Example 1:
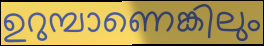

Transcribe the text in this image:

ഉറുമ്പാണെങ്കിലും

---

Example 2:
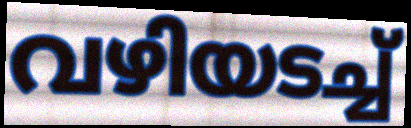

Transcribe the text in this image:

വഴിയടച്ച്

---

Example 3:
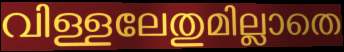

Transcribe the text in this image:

വിള്ളലേതുമില്ലാതെ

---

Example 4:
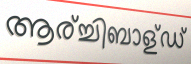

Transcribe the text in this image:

ആര്ച്ചിബാള്ഡ്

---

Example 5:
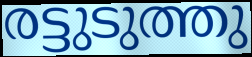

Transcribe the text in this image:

രട്ടുടുത്തു